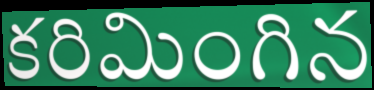
కరిమింగిన